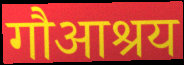
गौआश्रय